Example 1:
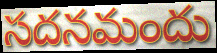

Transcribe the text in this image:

సదనమందు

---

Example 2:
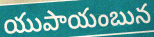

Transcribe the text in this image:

యుపాయంబున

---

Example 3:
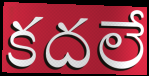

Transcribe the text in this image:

కదలే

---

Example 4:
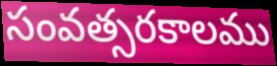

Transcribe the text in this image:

సంవత్సరకాలము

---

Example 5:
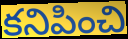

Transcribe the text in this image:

కనిపించి